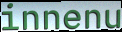
innenu